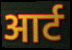
आर्ट